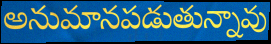
అనుమానపడుతున్నావు